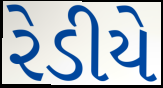
રેડીયે